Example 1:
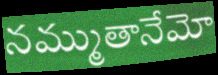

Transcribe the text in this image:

నమ్ముతానేమో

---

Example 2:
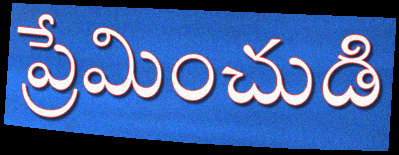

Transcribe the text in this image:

ప్రేమించుడి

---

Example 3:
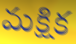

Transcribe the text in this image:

మక్షిక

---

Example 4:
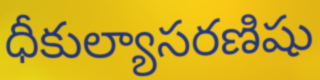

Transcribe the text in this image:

ధీకుల్యాసరణిషు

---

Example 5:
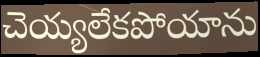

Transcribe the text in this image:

చెయ్యలేకపోయాను